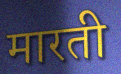
मारती